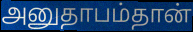
அனுதாபம்தான்